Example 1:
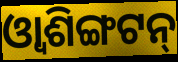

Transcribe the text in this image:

ଓ୍ୱାଶିଙ୍ଗଟନ୍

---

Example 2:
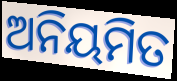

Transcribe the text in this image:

ଅନିୟମିତ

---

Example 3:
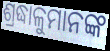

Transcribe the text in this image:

ଶ୍ରଦ୍ଧାଳୁମାନଙ୍କ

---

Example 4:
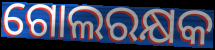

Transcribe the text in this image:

ଗୋଲରକ୍ଷକ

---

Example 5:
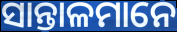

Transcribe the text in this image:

ସାନ୍ତାଳମାନେ